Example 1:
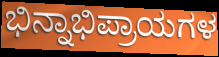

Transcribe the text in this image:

ಭಿನ್ನಾಭಿಪ್ರಾಯಗಳ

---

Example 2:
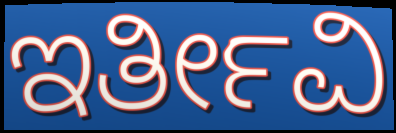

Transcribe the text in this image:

ಇರ್ತೀವಿ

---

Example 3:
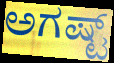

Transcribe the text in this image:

ಅಗಷ್ಟ್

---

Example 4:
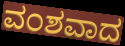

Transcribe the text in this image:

ವಂಶವಾದ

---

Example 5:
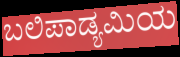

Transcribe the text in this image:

ಬಲಿಪಾಡ್ಯಮಿಯ